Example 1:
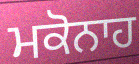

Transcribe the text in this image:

ਮਕੋਨਾਹ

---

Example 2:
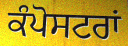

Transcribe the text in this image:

ਕੰਪੋਸਟਰਾਂ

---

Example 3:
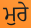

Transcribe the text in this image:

ਮੁਰੇ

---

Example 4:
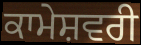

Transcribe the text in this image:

ਕਾਮੇਸ਼ਵਰੀ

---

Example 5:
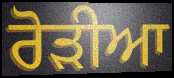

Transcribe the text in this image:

ਰੋੜੀਆ